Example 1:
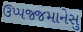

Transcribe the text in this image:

ઉપ્પજ્જમાનેસુ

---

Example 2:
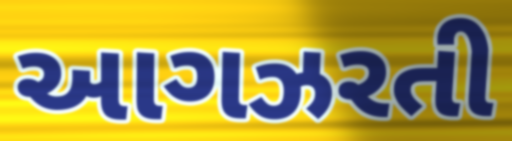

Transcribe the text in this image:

આગઝરતી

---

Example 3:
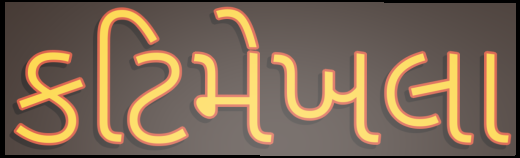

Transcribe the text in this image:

કટિમેખલા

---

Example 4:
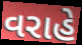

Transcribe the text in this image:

વરાહે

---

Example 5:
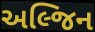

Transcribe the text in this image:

અલ્જિન